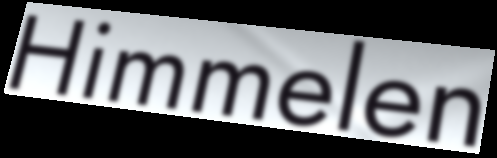
Himmelen